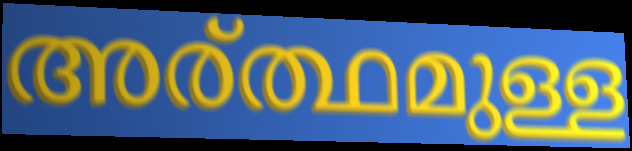
അര്ത്ഥമുള്ള